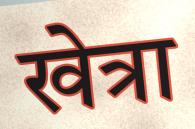
खेत्रा